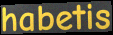
habetis